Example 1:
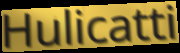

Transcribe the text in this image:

Hulicatti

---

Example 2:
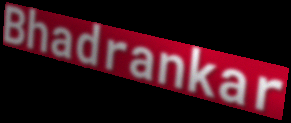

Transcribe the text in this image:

Bhadrankar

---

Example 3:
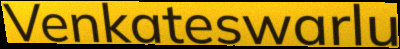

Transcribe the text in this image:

Venkateswarlu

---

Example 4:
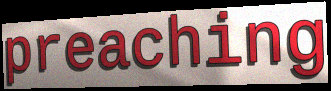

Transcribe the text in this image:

preaching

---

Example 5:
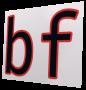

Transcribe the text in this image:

bf